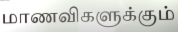
மாணவிகளுக்கும்